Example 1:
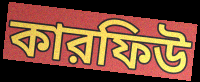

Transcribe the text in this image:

কারফিউ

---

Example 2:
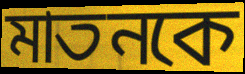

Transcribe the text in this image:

মাতনকে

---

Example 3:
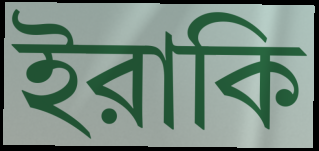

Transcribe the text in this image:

ইরাকি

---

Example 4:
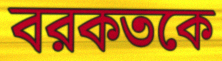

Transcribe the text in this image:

বরকতকে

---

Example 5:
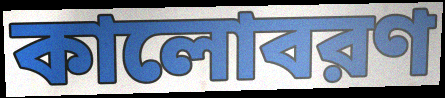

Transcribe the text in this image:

কালোবরণ